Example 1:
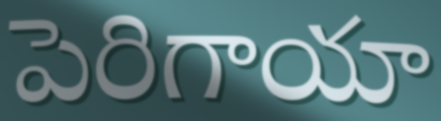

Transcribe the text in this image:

పెరిగాయా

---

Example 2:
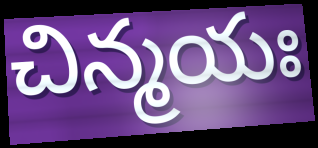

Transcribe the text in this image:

చిన్మయః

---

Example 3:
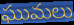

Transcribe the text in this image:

ఘుమలు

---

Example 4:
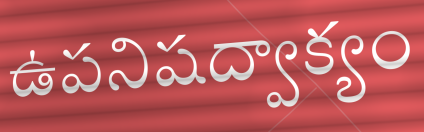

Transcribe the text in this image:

ఉపనిషద్వాక్యం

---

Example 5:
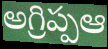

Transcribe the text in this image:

అగ్రిప్పఆ